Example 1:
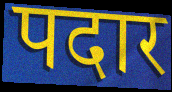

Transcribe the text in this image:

पदार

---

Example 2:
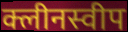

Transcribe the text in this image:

क्लीनस्वीप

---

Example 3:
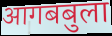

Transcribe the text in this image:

आगबबुला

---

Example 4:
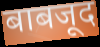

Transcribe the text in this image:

बाबजूद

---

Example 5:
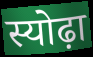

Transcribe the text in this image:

स्योढ़ा